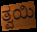
ತ್ವಯಿ